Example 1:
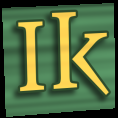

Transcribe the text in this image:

Ik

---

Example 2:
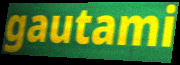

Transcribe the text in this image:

gautami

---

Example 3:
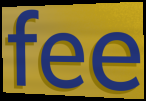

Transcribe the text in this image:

fee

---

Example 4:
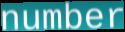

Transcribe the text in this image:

number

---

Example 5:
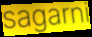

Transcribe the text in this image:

sagarni